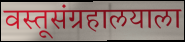
वस्तूसंग्रहालयाला